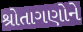
શ્રોતાગણોને